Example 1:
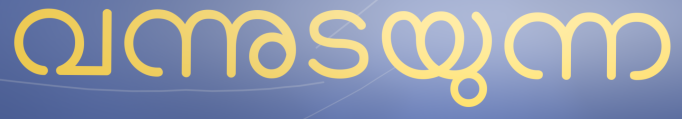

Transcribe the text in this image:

വന്നുടയുന്ന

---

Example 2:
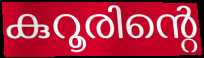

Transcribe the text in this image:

കുറൂരിന്റെ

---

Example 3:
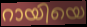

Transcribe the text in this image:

റായിയെ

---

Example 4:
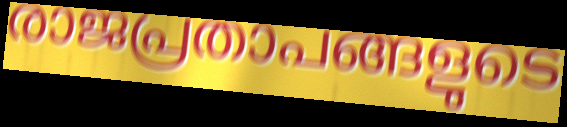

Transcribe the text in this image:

രാജപ്രതാപങ്ങളുടെ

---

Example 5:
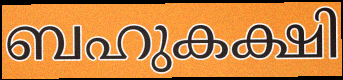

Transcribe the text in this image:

ബഹുകക്ഷി